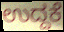
ಉದ್ದಕೆ